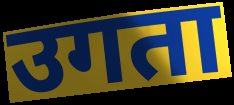
उगता